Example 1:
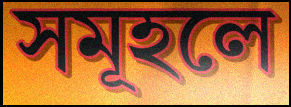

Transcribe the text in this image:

সমূহলে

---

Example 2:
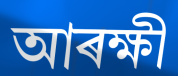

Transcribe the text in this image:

আৰক্ষী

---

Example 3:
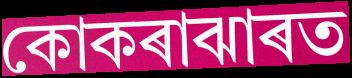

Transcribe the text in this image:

কোকৰাঝাৰত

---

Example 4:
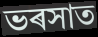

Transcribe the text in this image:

ভৰসাত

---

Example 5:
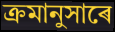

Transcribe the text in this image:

ক্ৰমানুসাৰে